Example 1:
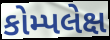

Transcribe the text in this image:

કોમ્પલેક્ષ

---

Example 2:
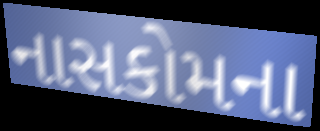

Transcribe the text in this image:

નાસકોમના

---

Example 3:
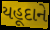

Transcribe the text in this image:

યહૂદાને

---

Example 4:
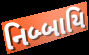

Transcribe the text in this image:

નિબ્બાયિ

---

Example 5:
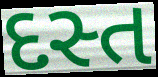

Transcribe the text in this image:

દસ્ત